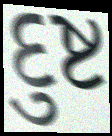
દુષ્ટ